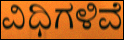
ವಿಧಿಗಳಿವೆ